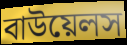
বাউয়েলস